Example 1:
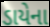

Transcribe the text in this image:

ડાયેના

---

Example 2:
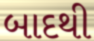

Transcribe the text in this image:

બાદથી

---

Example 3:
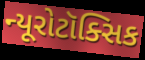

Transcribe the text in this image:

ન્યૂરોટૉક્સિક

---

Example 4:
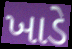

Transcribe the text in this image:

ખાડે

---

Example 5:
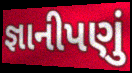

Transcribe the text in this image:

જ્ઞાનીપણું